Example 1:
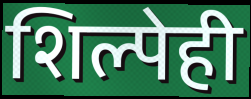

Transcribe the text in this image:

शिल्पेही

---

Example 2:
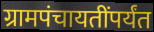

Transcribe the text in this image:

ग्रामपंचायतींपर्यंत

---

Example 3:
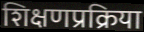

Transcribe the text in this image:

शिक्षणप्रक्रिया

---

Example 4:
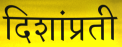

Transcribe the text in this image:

दिशांप्रती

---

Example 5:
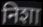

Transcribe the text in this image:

निशा